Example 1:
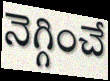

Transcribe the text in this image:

నెగ్గించే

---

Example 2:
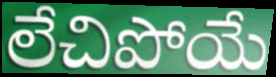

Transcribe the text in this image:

లేచిపోయే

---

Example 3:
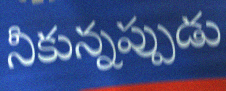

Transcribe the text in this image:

నీకున్నప్పుడు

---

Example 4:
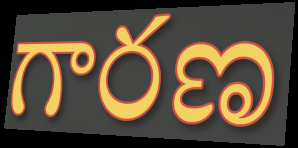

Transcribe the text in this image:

గారణ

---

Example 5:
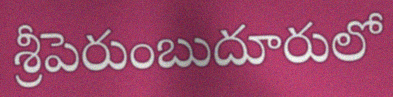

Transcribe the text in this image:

శ్రీపెరుంబుదూరులో